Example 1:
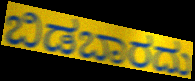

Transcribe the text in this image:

ಬಿಡಬಾರದು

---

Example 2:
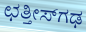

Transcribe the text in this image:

ಛತ್ತೀಸ್‍ಗಢ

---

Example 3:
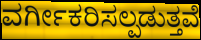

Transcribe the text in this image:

ವರ್ಗೀಕರಿಸಲ್ಪಡುತ್ತವೆ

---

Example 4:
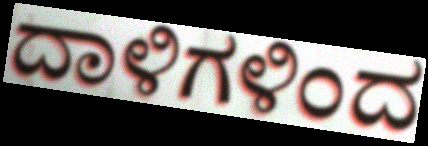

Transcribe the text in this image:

ದಾಳಿಗಳಿಂದ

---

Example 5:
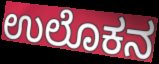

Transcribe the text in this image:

ಉಲೊಕನ